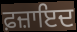
ਫ਼ਜ਼ਾਇਦ